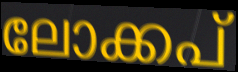
ലോക്കപ്